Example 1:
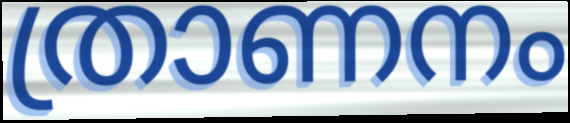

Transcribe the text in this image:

ത്രാണനം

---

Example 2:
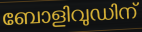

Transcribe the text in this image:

ബോളിവുഡിന്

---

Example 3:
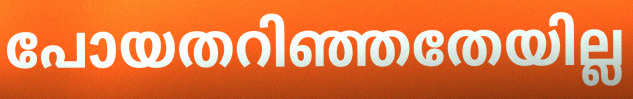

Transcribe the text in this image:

പോയതറിഞ്ഞതേയില്ല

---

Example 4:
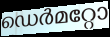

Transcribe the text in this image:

ഡെർമറ്റോ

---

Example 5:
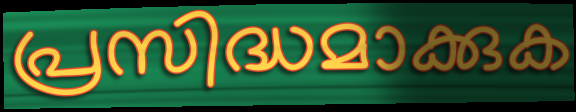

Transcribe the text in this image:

പ്രസിദ്ധമാക്കുക